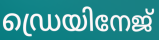
ഡ്രെയിനേജ്